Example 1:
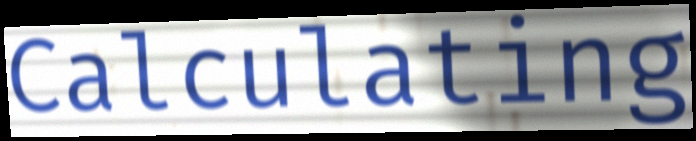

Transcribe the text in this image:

Calculating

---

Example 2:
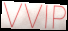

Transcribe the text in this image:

VVIP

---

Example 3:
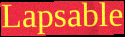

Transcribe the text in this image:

Lapsable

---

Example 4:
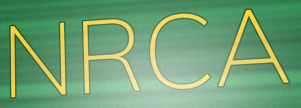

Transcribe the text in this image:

NRCA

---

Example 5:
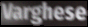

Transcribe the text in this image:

Varghese